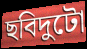
ছবিদুটো